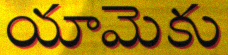
యామెకు